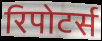
रिपोटर्स